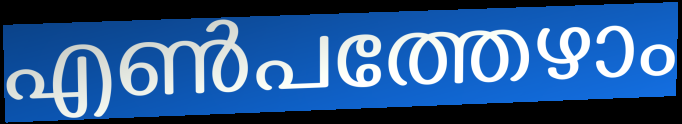
എൺപത്തേഴാം